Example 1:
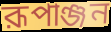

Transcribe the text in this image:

রূপাঞ্জন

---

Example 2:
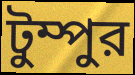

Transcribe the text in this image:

টুম্পুর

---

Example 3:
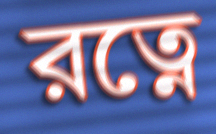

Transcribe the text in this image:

রত্নে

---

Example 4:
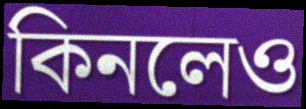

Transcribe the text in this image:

কিনলেও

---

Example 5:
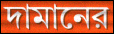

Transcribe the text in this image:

দামানের